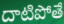
దాటిపోతే